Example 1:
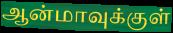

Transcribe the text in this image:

ஆன்மாவுக்குள்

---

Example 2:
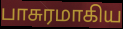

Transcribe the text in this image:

பாசுரமாகிய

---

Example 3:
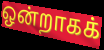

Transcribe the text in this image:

ஒன்றாகக்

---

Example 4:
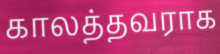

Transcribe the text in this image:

காலத்தவராக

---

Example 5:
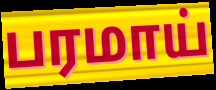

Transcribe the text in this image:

பரமாய்